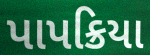
પાપક્રિયા